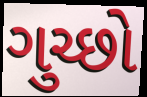
ગુચ્છો